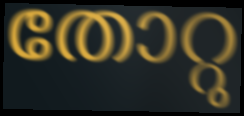
തോറ്റു